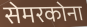
सेमरकोना